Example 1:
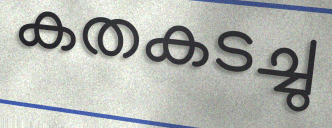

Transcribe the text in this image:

കതകടച്ചു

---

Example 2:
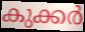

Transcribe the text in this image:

കുക്കർ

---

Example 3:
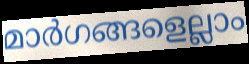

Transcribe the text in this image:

മാർഗങ്ങളെല്ലാം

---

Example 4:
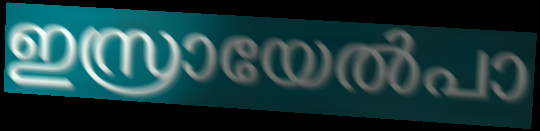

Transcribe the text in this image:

ഇസ്രായേൽപാ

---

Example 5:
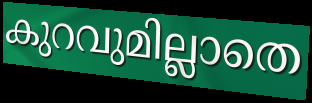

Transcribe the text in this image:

കുറവുമില്ലാതെ